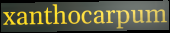
xanthocarpum